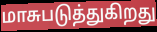
மாசுபடுத்துகிறது